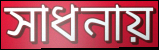
সাধনায়